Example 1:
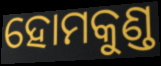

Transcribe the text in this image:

ହୋମକୁଣ୍ଡ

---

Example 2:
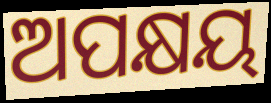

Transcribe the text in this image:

ଅପକ୍ଷୟ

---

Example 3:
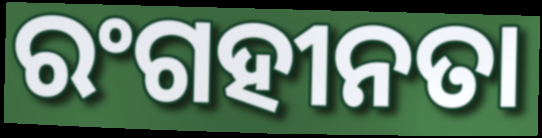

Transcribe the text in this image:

ରଂଗହୀନତା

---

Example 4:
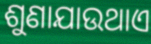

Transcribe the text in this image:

ଶୁଣାଯାଉଥାଏ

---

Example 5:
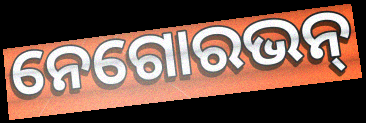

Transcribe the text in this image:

ନେଗୋରଭନ୍